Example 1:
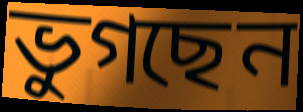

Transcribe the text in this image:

ভুগছেন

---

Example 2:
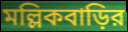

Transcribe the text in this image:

মল্লিকবাড়ির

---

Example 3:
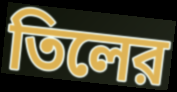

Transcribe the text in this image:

তিলের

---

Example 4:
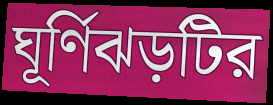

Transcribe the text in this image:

ঘূর্ণিঝড়টির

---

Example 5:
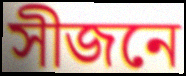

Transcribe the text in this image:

সীজনে